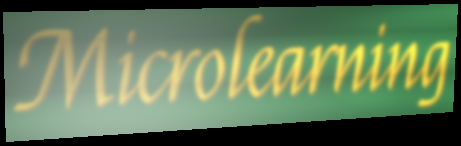
Microlearning